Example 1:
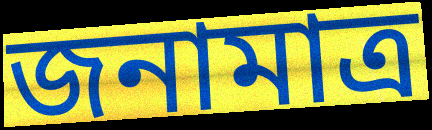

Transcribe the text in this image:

জনামাত্র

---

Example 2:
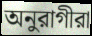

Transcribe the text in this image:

অনুরাগীরা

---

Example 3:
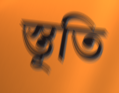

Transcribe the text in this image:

স্তূতি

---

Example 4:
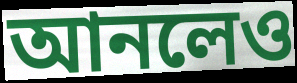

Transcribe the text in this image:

আনলেও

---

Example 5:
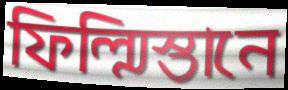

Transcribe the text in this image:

ফিল্মিস্তানে